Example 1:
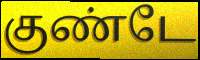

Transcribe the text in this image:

குண்டே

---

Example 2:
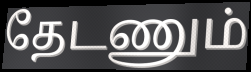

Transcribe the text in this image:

தேடணும்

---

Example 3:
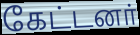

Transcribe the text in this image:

கேட்டனர்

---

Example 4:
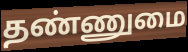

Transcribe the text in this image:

தண்ணுமை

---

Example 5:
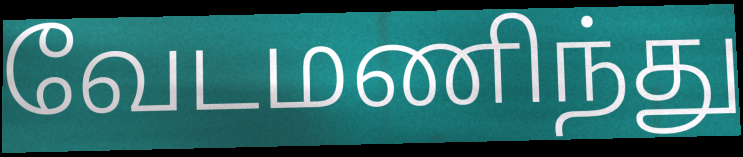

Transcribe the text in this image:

வேடமணிந்து